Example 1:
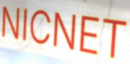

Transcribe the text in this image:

NICNET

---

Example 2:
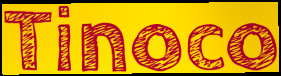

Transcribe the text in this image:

Tinoco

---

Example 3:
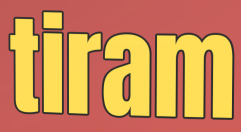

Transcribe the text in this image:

tiram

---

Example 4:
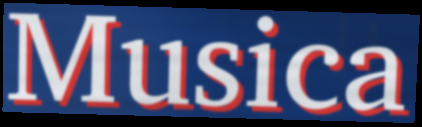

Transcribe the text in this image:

Musica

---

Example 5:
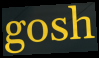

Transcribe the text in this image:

gosh